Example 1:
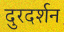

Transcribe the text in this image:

दुरदर्शन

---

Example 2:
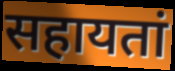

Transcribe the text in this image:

सहायतां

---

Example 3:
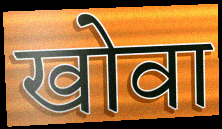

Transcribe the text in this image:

खोवा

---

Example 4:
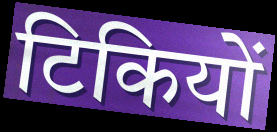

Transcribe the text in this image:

टिकियों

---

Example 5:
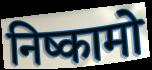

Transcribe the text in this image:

निष्कामो